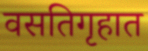
वसतिगृहात